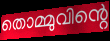
തൊമ്മുവിന്റെ